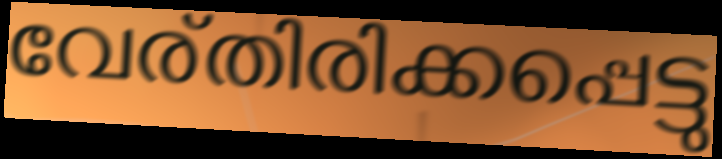
വേര്തിരിക്കപ്പെട്ടു